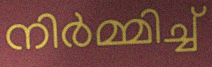
നിർമ്മിച്ച്